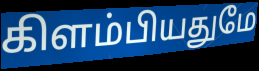
கிளம்பியதுமே